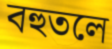
বহুতলে